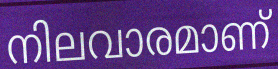
നിലവാരമാണ്